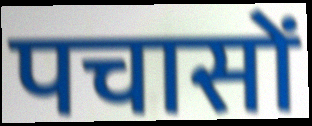
पचासों